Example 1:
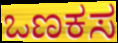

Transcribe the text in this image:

ಒಣಕಸ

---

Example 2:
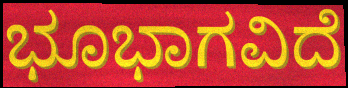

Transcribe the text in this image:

ಭೂಭಾಗವಿದೆ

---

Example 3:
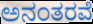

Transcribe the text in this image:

ಅನಂತರವೆ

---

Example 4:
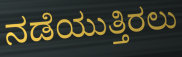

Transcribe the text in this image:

ನಡೆಯುತ್ತಿರಲು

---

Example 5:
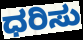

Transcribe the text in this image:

ಧರಿಸು